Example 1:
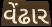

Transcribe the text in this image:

વેંઢાર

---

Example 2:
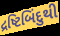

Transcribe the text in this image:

દ્રષ્ટિબિંદુથી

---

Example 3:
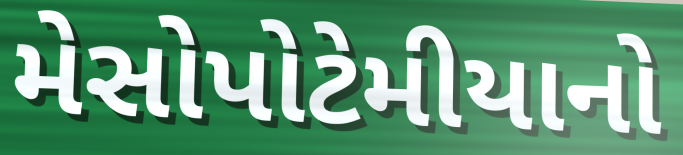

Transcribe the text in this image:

મેસોપોટેમીયાનો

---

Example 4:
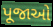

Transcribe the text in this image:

પૂજાઓ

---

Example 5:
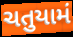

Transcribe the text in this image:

ચતુયામં